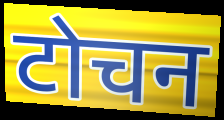
टोचन